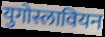
युगोस्लावियन